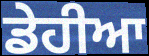
ਡੇਹੀਆ